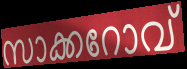
സാക്കറോവ്